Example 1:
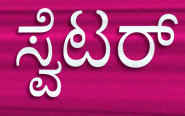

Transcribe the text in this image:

ಸ್ವೆಟರ್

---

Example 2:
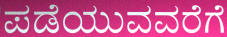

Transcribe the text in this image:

ಪಡೆಯುವವರೆಗೆ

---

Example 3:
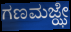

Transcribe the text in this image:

ಗಣಮಜ್ಝೇ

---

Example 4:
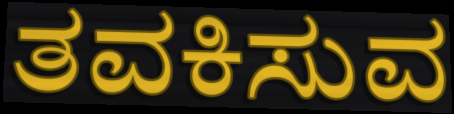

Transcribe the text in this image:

ತವಕಿಸುವ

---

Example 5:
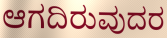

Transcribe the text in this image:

ಆಗದಿರುವುದರ